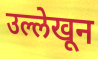
उल्लेखून